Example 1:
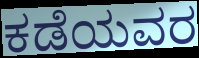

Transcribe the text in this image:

ಕಡೆಯವರ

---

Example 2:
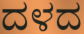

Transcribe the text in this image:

ದಳದ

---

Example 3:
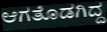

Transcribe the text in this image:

ಆಗತೊಡಗಿದ್ದ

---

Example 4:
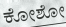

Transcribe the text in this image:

ಕೋಶೋ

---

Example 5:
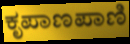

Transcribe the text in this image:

ಕೃಪಾಣಪಾಣಿ